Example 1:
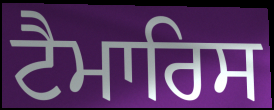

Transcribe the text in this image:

ਟੈਮਾਰਿਸ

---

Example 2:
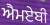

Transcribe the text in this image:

ਐਮਏਬੀ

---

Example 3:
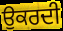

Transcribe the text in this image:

ਉਕਰਦੀ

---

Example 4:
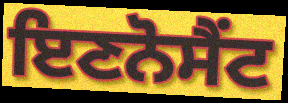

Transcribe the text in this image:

ਇਣਨੋਸੈਂਟ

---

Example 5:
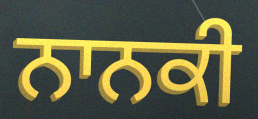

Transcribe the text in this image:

ਨਾਨਕੀ